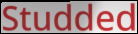
Studded